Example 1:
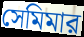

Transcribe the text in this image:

সেমিমার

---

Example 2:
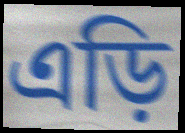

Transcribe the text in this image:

এড়ি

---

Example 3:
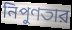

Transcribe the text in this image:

নিপুণতার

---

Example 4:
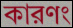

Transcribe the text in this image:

কারণং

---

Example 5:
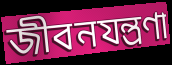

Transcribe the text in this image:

জীবনযন্ত্রণা